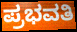
ಪ್ರಭವತಿ